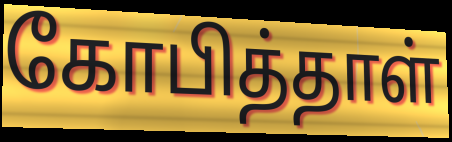
கோபித்தாள்